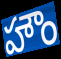
హౌం